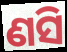
ଣସି